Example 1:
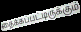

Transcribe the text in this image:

தைக்கப்பட்டிருக்கும்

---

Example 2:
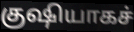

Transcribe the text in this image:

குஷியாகச்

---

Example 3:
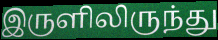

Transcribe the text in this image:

இருளிலிருந்து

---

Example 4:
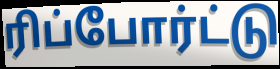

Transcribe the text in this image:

ரிப்போர்ட்டு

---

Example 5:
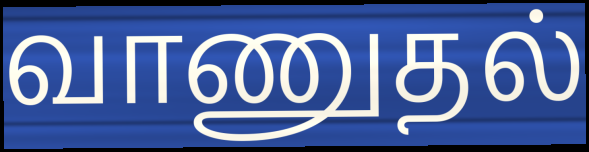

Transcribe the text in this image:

வாணுதல்